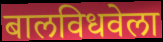
बालविधवेला